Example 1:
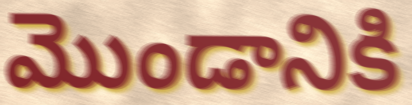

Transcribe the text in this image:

మొండానికి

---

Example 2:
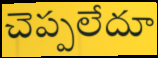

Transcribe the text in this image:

చెప్పలేదూ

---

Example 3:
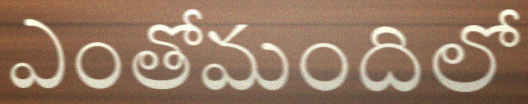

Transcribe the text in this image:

ఎంతోమందిలో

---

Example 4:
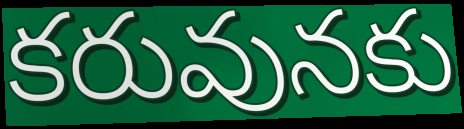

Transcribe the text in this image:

కరువునకు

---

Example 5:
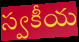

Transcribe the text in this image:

స్వకీయ